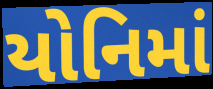
યોનિમાં